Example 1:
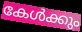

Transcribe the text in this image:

കേൾക്കും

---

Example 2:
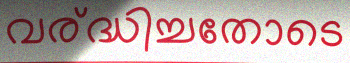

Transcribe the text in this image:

വര്ദ്ധിച്ചതോടെ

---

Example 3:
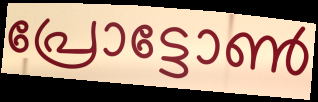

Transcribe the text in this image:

പ്രോട്ടോൺ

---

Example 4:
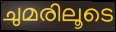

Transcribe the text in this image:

ചുമരിലൂടെ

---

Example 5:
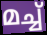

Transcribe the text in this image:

മച്ച്